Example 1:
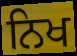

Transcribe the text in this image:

ਨਿਖ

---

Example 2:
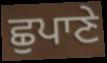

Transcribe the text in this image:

ਛੁਪਾਣੇ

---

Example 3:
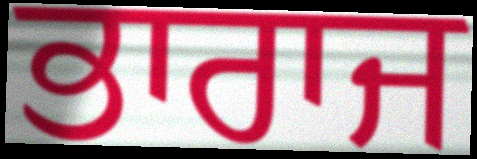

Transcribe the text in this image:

ਭਾਰਾਜ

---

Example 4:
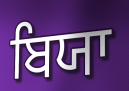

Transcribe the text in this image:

ਬਿਯਾ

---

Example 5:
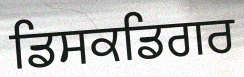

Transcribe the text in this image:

ਡਿਸਕਡਿਗਰ